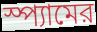
স্প্যামের